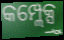
କମ୍ପ୍ଲେକ୍ସ୍ରୁ